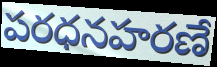
పరధనహరణే